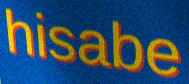
hisabe